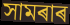
সামৰাৰ